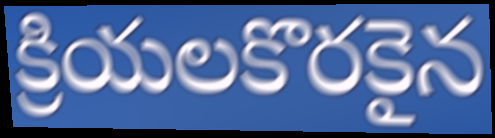
క్రియలకొరకైన